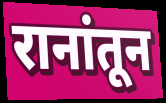
रानांतून